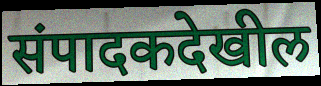
संपादकदेखील